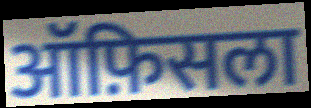
ऑफ़िसला